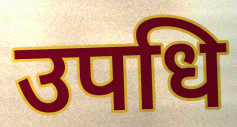
उपधि